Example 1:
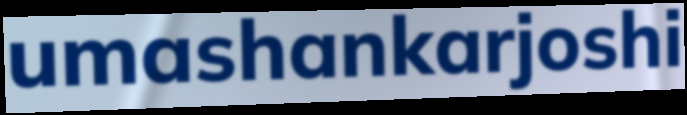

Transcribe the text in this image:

umashankarjoshi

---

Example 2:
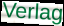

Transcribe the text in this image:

Verlag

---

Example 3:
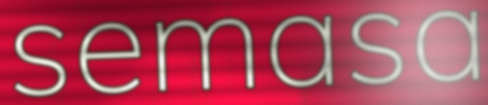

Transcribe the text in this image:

semasa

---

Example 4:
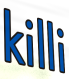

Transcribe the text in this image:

killi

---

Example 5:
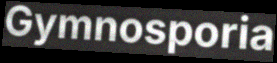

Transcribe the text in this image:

Gymnosporia